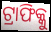
ଟ୍ରାଫିକ୍କୁ